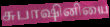
சுபாஷினியை